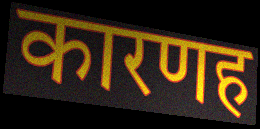
कारणह